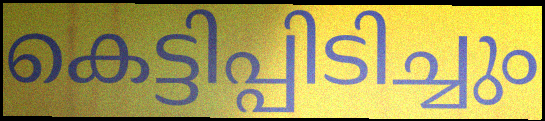
കെട്ടിപ്പിടിച്ചും